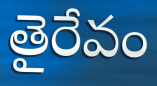
తైరేవం